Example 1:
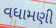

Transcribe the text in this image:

વધામણી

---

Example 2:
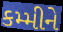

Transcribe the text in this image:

કમ્મીને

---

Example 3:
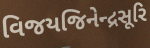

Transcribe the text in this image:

વિજયજિનેન્દ્રસૂરિ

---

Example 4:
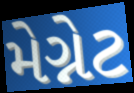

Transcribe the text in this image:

મેગ્નેટ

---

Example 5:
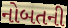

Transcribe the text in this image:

નોબતની